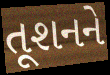
તૂશનને